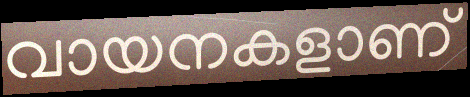
വായനകളാണ്